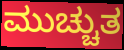
ಮುಚ್ಚುತ